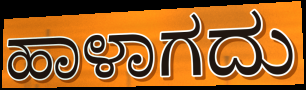
ಹಾಳಾಗದು